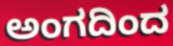
ಅಂಗದಿಂದ